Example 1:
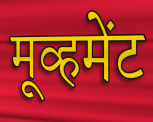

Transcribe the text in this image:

मूव्हमेंट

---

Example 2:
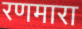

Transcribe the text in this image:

रणमारा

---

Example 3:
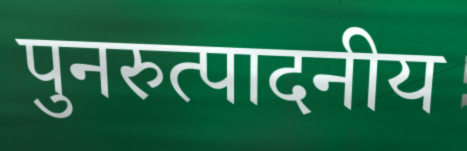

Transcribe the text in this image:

पुनरुत्पादनीय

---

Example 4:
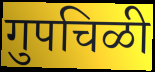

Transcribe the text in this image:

गुपचिळी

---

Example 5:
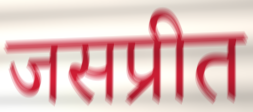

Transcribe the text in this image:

जसप्रीत